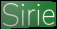
Sirie